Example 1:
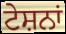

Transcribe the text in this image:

ਟੇਸ਼ਨਾਂ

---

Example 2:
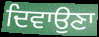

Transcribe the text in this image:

ਦਿਵਾਉਣਾ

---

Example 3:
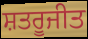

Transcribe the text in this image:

ਸ਼ਤਰੂਜੀਤ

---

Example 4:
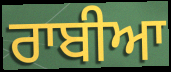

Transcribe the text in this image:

ਰਾਬੀਆ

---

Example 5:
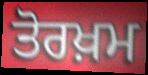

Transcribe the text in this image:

ਤੋਰਖ਼ਮ